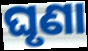
ଘୃଣା